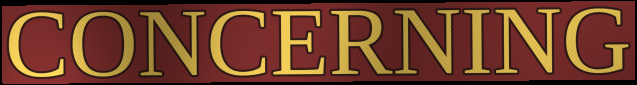
CONCERNING